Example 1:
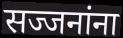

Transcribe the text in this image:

सज्जनांना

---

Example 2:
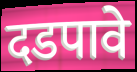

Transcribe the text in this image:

दडपावे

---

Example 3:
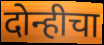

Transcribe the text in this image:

दोन्हीचा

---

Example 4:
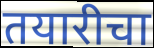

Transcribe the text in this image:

तयारीचा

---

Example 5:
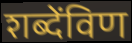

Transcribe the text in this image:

शब्देंविण